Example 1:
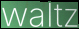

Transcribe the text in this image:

waltz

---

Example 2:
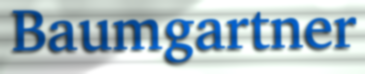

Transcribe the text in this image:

Baumgartner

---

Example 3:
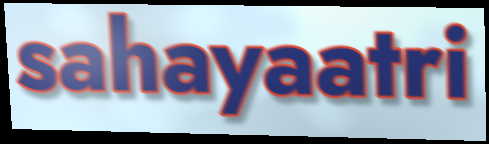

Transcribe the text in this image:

sahayaatri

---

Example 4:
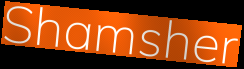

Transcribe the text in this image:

Shamsher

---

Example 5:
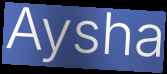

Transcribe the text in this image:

Aysha